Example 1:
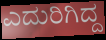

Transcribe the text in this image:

ಎದುರಿಗಿದ್ದ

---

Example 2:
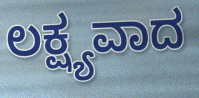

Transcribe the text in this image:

ಲಕ್ಷ್ಯವಾದ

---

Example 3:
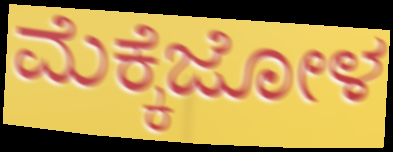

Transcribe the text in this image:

ಮೆಕ್ಕೆಜೋಳ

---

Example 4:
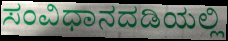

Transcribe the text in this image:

ಸಂವಿಧಾನದಡಿಯಲ್ಲಿ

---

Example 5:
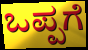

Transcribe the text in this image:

ಒಪ್ಪಗೆ